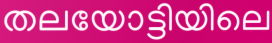
തലയോട്ടിയിലെ